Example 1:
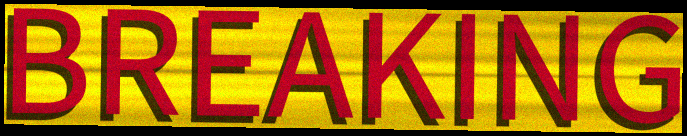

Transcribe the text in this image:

BREAKING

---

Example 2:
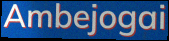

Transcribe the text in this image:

Ambejogai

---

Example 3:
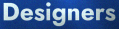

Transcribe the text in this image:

Designers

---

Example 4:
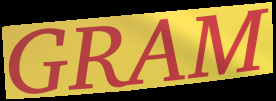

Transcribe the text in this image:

GRAM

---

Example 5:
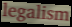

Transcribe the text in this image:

legalism